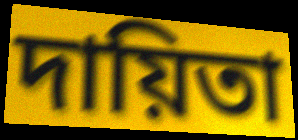
দায়িতা